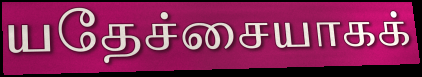
யதேச்சையாகக்